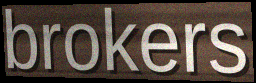
brokers